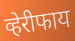
व्हेरीफाय